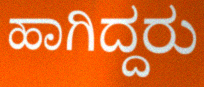
ಹಾಗಿದ್ದರು